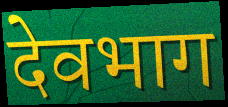
देवभाग